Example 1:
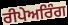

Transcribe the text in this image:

ਰੀਪੇਅਰਿੰਗ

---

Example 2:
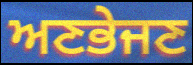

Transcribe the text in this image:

ਅਣਭੇਜਣ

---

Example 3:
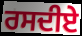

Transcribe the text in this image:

ਰਸਦੀਏ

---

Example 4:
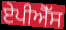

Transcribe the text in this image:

ਏਪੀਐੱਸ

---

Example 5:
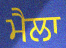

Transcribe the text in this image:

ਮੈਲਾ